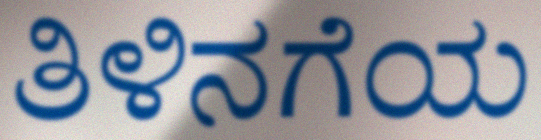
ತಿಳಿನಗೆಯ